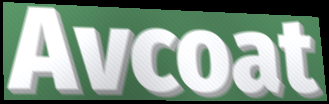
Avcoat